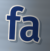
fa